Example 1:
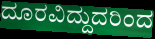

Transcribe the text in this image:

ದೂರವಿದ್ದುದರಿಂದ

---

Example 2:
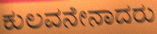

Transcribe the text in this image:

ಕುಲವನೇನಾದರು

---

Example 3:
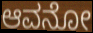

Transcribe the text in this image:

ಆವನೋ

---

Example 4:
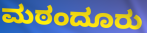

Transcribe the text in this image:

ಮಠಂದೂರು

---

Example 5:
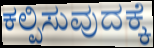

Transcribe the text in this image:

ಕಲ್ಪಿಸುವುದಕ್ಕೆ